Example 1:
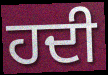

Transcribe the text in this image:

ਹਦੀ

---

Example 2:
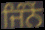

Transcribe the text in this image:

ਜਿੰਨੇਂ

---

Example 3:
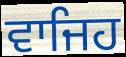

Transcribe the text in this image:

ਵਾਜਿਹ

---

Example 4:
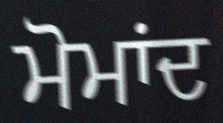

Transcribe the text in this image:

ਮੋਮਾਂਦ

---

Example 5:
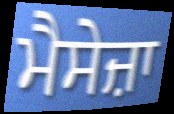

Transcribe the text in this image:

ਮੈਸੇਜ਼ਾ